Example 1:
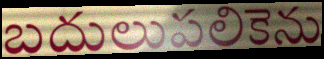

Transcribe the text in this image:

బదులుపలికెను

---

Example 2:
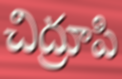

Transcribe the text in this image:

చిద్రూపి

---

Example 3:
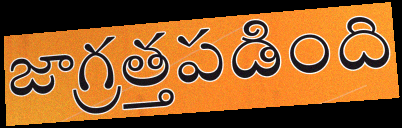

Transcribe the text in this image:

జాగ్రత్తపడింది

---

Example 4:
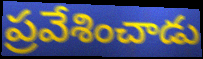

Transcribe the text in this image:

ప్రవేశించాడు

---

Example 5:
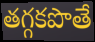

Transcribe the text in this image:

తగ్గకపొతే